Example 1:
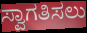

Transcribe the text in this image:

ಸ್ವಾಗತಿಸಲು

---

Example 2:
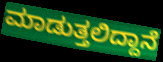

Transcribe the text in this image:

ಮಾಡುತ್ತಲಿದ್ದಾನೆ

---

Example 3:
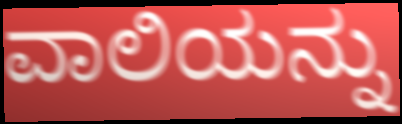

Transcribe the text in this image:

ವಾಲಿಯನ್ನು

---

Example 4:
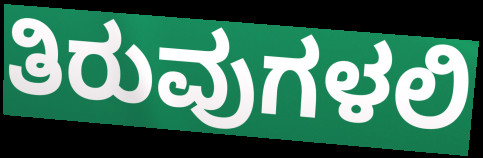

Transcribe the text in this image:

ತಿರುವುಗಳಲಿ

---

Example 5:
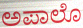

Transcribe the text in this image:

ಅಪಾಲೊ